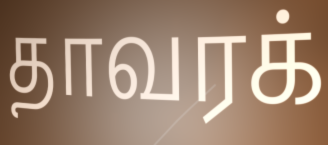
தாவரக்